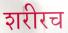
शरीरच